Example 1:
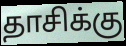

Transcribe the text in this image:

தாசிக்கு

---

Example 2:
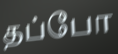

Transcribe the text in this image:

தப்போ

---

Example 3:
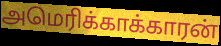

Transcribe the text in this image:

அமெரிக்காக்காரன்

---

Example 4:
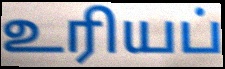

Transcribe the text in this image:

உரியப்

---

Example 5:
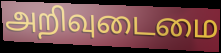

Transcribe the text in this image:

அறிவுடைமை